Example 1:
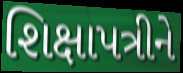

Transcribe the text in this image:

શિક્ષાપત્રીને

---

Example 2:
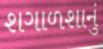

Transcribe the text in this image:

શગાળશાનું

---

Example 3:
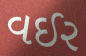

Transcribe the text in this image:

વઈર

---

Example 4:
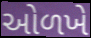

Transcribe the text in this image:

ઓળખે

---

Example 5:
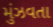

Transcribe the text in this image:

મુંઝવતા